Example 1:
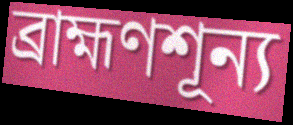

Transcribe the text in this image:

ব্রাহ্মণশূন্য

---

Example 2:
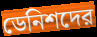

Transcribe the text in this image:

ডেনিশদের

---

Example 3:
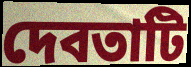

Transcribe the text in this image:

দেবতাটি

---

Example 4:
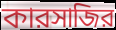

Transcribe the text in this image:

কারসাজির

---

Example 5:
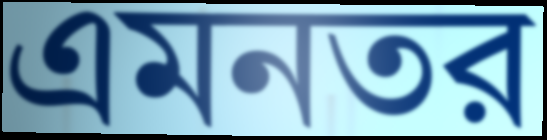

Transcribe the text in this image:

এমনতর